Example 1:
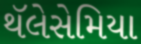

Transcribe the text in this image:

થૅલેસેમિયા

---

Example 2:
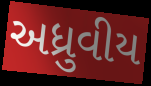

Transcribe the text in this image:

અધ્રુવીય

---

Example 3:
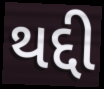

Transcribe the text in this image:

થદ્દી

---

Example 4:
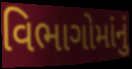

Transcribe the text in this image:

વિભાગોમાંનું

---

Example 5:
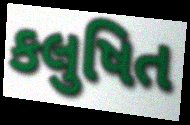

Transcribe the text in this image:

કલુષિત